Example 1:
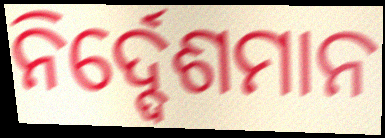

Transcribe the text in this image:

ନିର୍ଦ୍ଦେଶମାନ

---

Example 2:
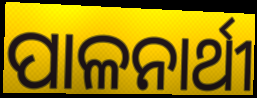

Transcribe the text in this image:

ପାଳନାର୍ଥୀ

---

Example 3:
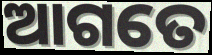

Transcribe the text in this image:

ଆଗତେ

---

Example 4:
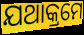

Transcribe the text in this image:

ଯଥାକ୍ରମେ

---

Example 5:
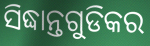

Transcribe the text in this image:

ସିଦ୍ଧାନ୍ତଗୁଡିକର